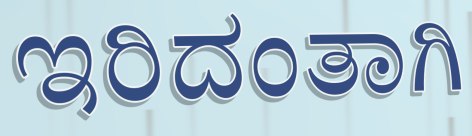
ಇರಿದಂತಾಗಿ